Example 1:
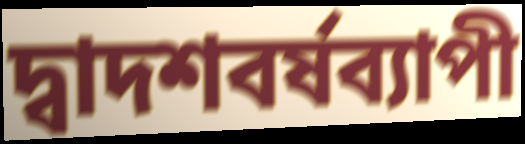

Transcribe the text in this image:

দ্বাদশবর্ষব্যাপী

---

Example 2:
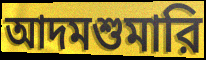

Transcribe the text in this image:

আদমশুমারি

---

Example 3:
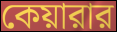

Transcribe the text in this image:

কেয়ারার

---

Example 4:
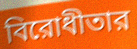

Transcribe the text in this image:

বিরোধীতার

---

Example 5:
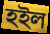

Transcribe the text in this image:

হইল